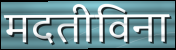
मदतीविना